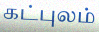
கட்புலம்